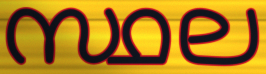
സ്ഥല